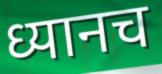
ध्यानच